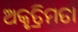
ଅକୃତ୍ରିମତା